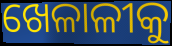
ଖେଳାଳୀକୁ